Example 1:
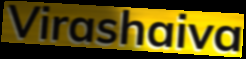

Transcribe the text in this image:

Virashaiva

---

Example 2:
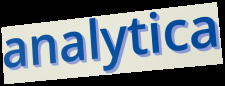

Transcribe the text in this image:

analytica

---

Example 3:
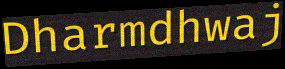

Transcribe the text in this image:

Dharmdhwaj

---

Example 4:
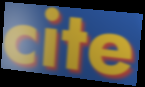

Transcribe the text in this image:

cite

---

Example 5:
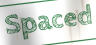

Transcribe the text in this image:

Spaced